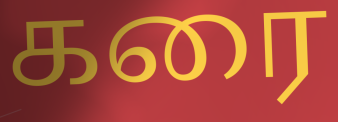
கரை